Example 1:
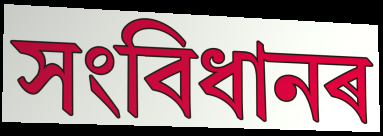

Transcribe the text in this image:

সংবিধানৰ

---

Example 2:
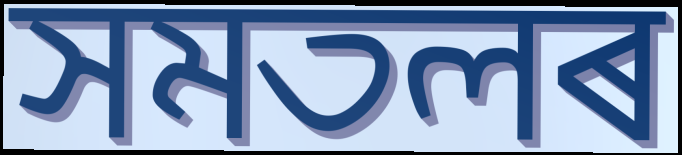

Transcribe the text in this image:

সমতলৰ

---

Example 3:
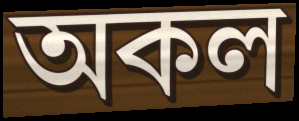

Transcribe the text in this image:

অকল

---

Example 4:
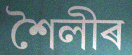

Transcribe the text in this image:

শৈলীৰ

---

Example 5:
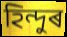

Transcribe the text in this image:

হিন্দুৰ